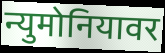
न्युमोनियावर